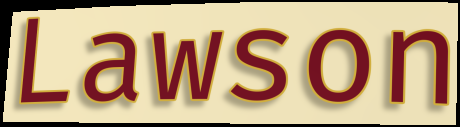
Lawson